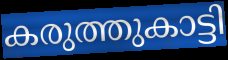
കരുത്തുകാട്ടി